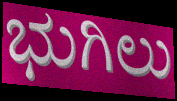
ಭುಗಿಲು